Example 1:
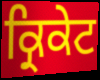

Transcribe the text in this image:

ਕ੍ਰਿਕੇਟ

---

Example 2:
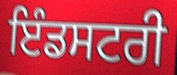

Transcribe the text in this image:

ਇੰਡਸਟਰੀ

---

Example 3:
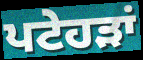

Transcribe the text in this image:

ਪਟੇਹੜਾਂ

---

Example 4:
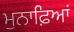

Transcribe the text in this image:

ਮੁਨਾਫ਼ਿਆਂ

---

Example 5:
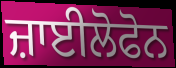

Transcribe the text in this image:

ਜ਼ਾਈਲੋਫੋਨ